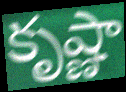
కృష్ణా